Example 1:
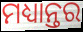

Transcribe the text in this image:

ମଧ୍ୟାନ୍ତର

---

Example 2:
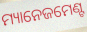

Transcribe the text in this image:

ମ୍ୟାନେଜମେଣ୍ଟ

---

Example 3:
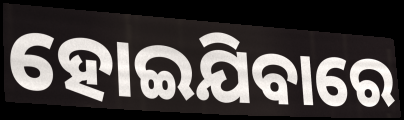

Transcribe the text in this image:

ହୋଇଯିବାରେ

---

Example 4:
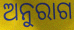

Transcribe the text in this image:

ଅନୁରାଗ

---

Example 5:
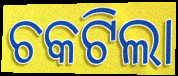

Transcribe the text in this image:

ଚକଟିଲା